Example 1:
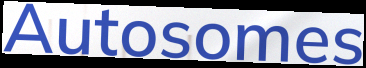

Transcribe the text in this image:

Autosomes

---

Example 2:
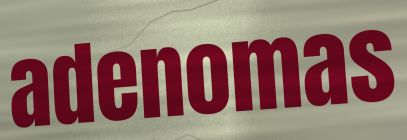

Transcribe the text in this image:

adenomas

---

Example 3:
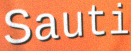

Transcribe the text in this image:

Sauti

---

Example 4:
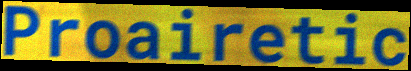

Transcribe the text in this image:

Proairetic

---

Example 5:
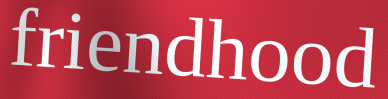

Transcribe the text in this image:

friendhood